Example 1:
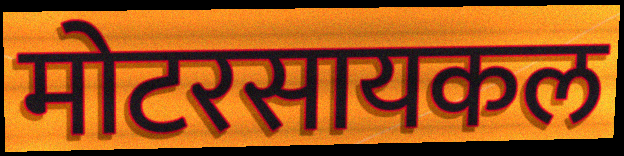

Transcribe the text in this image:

मोटरसायकल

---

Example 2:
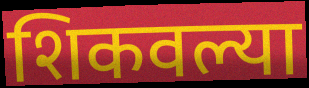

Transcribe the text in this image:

शिकवल्या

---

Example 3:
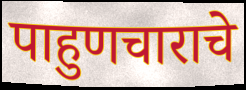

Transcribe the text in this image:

पाहुणचाराचे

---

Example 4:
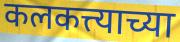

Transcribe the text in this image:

कलकत्त्याच्या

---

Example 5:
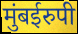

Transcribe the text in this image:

मुंबईरुपी